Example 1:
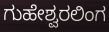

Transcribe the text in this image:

ಗುಹೇಶ್ವರಲಿಂಗ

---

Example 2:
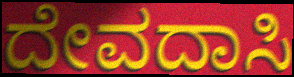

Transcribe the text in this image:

ದೇವದಾಸಿ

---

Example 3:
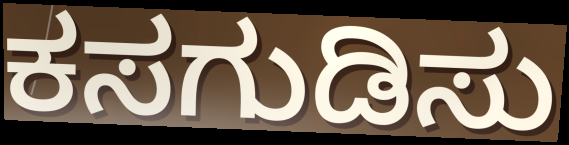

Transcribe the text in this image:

ಕಸಗುಡಿಸು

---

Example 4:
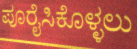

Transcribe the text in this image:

ಪೂರೈಸಿಕೊಳ್ಳಲು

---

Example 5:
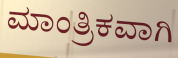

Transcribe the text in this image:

ಮಾಂತ್ರಿಕವಾಗಿ